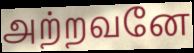
அற்றவனே